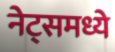
नेट्समध्ये